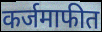
कर्जमाफीत